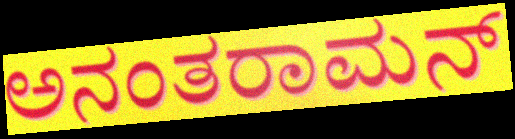
ಅನಂತರಾಮನ್